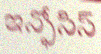
ఇన్ఫోసిస్